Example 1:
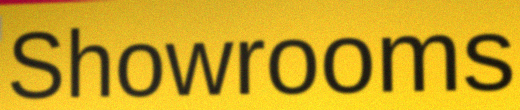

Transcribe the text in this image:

Showrooms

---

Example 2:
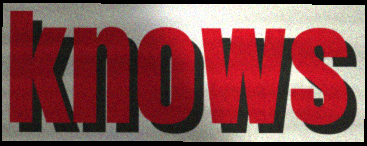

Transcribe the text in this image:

knows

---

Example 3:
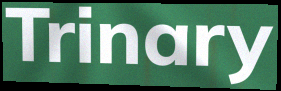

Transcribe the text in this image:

Trinary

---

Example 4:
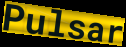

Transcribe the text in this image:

Pulsar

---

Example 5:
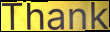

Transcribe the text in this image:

Thank